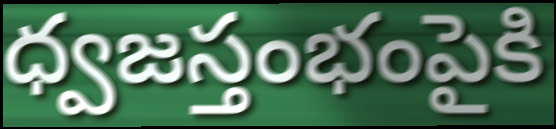
ధ్వజస్తంభంపైకి